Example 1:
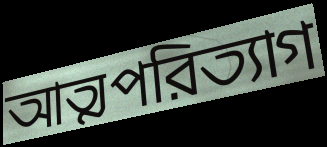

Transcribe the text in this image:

আত্মপরিত্যাগ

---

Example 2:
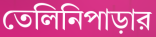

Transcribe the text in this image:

তেলিনিপাড়ার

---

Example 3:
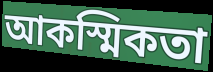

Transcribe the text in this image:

আকস্মিকতা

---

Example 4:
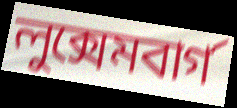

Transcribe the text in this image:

লুক্সেমবার্গ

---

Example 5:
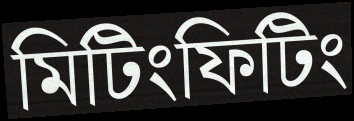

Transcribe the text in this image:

মিটিংফিটিং